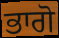
ਭਾਗੋ